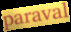
paraval